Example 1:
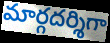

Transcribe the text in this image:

మార్గదర్శిగా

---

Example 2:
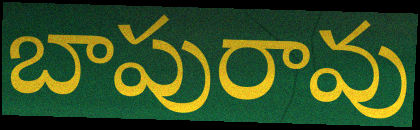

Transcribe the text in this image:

బాపురావు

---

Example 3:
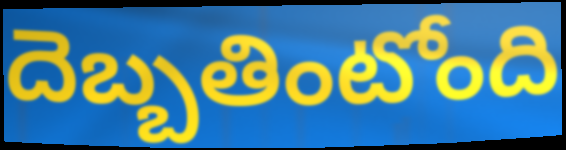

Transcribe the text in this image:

దెబ్బతింటోంది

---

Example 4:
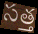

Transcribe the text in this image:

సత్త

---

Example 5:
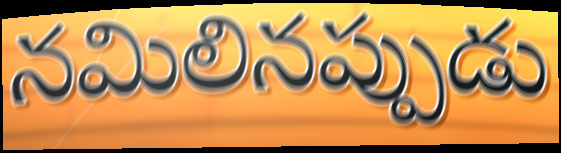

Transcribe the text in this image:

నమిలినప్పుడు